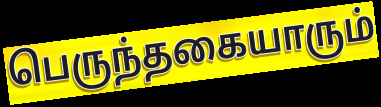
பெருந்தகையாரும்